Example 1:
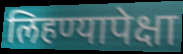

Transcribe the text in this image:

लिहण्यापेक्षा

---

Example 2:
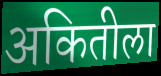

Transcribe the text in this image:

अकितीला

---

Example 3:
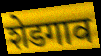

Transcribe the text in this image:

शेडगाव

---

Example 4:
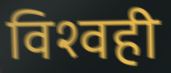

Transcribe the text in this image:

विश्वही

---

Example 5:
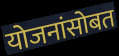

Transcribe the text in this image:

योजनांसोबत